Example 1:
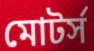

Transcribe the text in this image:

মোটর্স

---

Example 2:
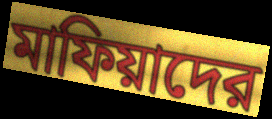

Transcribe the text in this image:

মাফিয়াদের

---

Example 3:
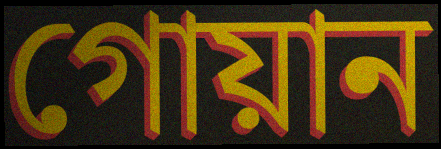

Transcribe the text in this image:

গোয়ান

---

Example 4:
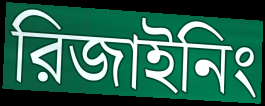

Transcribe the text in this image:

রিজাইনিং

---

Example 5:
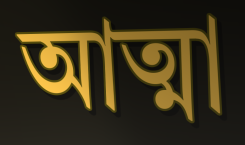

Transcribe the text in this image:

আত্মা